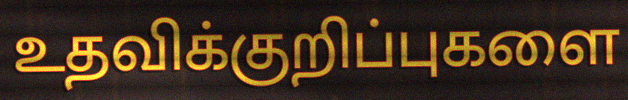
உதவிக்குறிப்புகளை